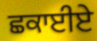
ਛਕਾਈਏ